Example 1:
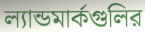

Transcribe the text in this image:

ল্যান্ডমার্কগুলির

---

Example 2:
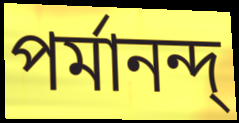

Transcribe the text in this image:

পর্মানন্দ্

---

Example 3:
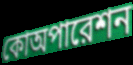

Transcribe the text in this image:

কোঅপারেশন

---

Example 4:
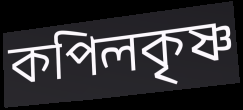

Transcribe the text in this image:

কপিলকৃষ্ণ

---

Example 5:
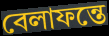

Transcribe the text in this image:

বেলাফন্তে